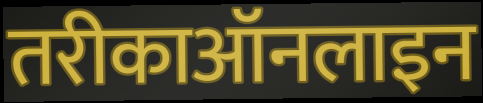
तरीकाऑनलाइन